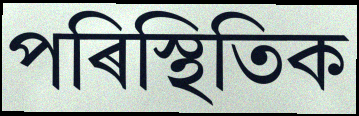
পৰিস্থিতিক